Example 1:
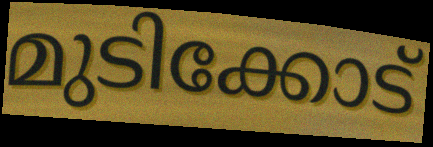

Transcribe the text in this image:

മുടിക്കോട്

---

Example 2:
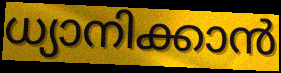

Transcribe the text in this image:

ധ്യാനിക്കാൻ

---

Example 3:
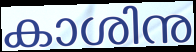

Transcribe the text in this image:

കാശിനു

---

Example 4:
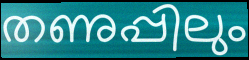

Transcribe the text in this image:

തണുപ്പിലും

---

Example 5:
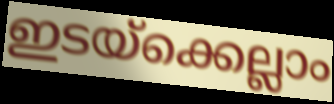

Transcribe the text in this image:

ഇടയ്ക്കെല്ലാം